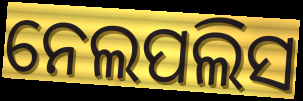
ନେଲପଲିସ